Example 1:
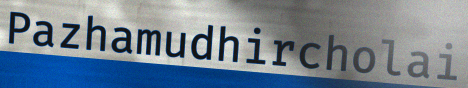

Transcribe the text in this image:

Pazhamudhircholai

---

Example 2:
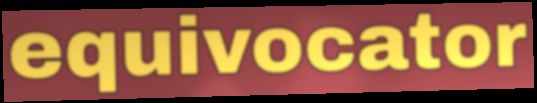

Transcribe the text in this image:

equivocator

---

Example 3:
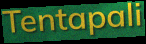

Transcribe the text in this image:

Tentapali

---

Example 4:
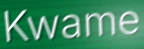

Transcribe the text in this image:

Kwame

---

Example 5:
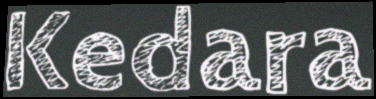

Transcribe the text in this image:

Kedara